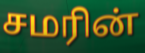
சமரின்